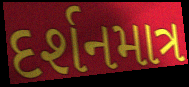
દર્શનમાત્ર